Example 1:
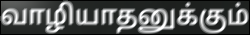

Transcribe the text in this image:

வாழியாதனுக்கும்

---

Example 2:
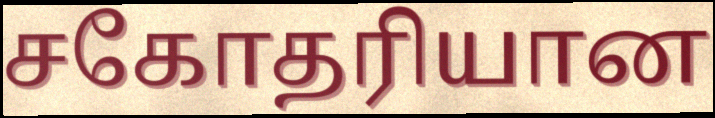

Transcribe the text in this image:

சகோதரியான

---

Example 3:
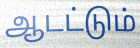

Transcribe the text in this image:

ஆடட்டும்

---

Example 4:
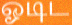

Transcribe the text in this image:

ஓடிட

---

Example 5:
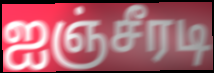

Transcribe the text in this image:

ஐஞ்சீரடி